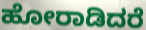
ಹೋರಾಡಿದರೆ